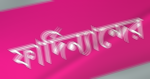
ফার্দিন্যান্দের